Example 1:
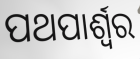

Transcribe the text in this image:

ପଥପାର୍ଶ୍ଵର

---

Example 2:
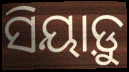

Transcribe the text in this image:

ସିୟାଡ଼ୁ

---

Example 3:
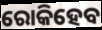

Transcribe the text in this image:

ରୋକିହେବ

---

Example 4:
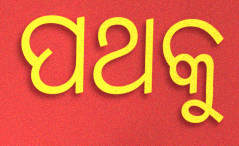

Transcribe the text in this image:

ପଥକୁ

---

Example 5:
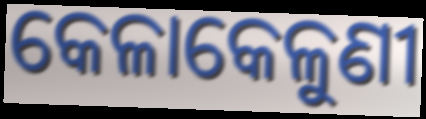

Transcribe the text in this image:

କେଳାକେଳୁଣୀ